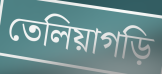
তেলিয়াগড়ি